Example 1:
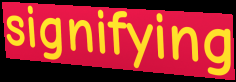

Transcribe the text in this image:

signifying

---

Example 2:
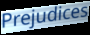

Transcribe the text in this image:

Prejudices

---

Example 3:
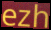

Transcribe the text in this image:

ezh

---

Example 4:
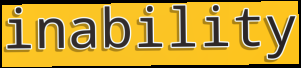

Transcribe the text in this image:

inability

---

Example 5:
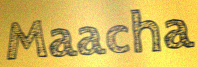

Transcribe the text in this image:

Maacha